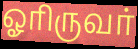
ஓரிருவர்